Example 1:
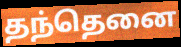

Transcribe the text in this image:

தந்தெனை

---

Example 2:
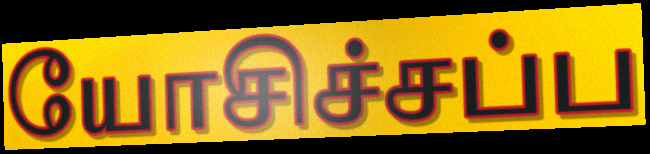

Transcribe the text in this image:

யோசிச்சப்ப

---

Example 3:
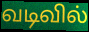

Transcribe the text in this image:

வடிவில்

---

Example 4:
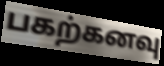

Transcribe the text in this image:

பகற்கனவு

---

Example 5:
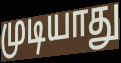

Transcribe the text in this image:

முடியாது